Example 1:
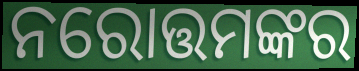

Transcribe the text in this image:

ନରୋତ୍ତମଙ୍କର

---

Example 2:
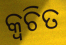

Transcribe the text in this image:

କ୍ୱଚିତ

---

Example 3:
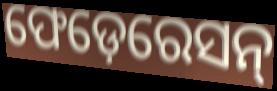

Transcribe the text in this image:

ଫେଡ଼େରେସନ୍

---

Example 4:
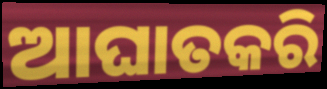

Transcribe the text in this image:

ଆଘାତକରି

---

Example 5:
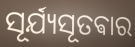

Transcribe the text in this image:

ସୂର୍ଯ୍ଯସୂତଵାର